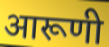
आरूणी